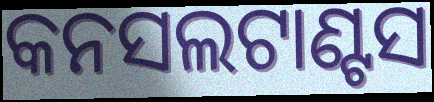
କନସଲଟାଣ୍ଟସ